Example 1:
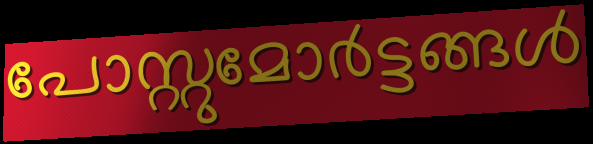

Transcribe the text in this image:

പോസ്റ്റുമോർട്ടങ്ങൾ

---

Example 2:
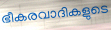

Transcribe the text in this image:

ഭീകരവാദികളുടെ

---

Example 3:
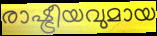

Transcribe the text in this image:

രാഷ്ട്രീയവുമായ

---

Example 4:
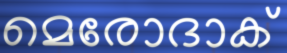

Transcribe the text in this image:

മെരോദാക്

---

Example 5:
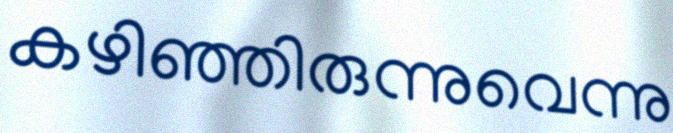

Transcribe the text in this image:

കഴിഞ്ഞിരുന്നുവെന്നു